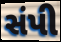
સંપી